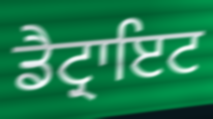
ਡੈਟ੍ਰਾਇਟ